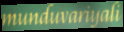
munduvariyali